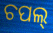
ଚପଲ୍